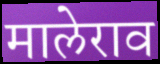
मालेराव